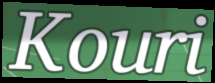
Kouri